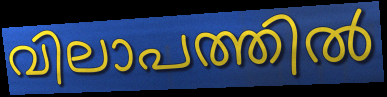
വിലാപത്തിൽ